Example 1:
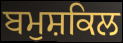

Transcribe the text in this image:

ਬਮੁਸ਼ਕਿਲ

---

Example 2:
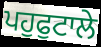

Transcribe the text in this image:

ਪਹੁਫੁਟਾਲੇ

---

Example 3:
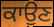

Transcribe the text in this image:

ਕਾਉਣ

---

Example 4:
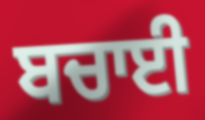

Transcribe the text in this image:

ਬਚਾਈ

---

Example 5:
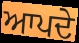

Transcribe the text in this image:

ਆਪਦੇ